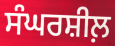
ਸੰਘਰਸ਼ੀਲ਼